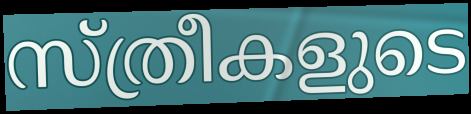
സ്ത്രീകളുടെ